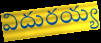
విదురయ్య